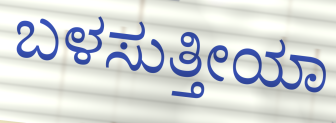
ಬಳಸುತ್ತೀಯಾ